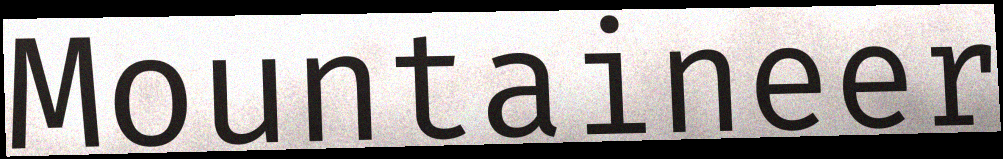
Mountaineer